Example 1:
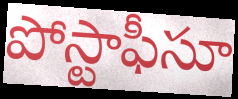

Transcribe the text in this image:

పోస్టాఫీసూ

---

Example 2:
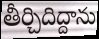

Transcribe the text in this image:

తీర్చిదిద్దాను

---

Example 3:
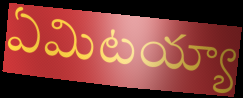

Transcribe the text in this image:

ఏమిటయ్యా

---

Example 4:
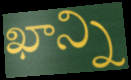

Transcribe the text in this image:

ఖాన్ని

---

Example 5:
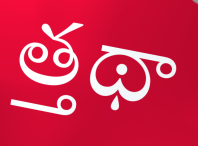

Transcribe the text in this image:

త్తథా